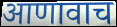
आणावाच